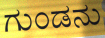
ಗುಂಡನು